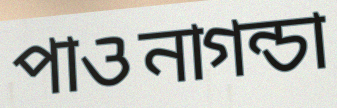
পাওনাগন্ডা